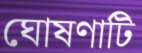
ঘোষণাটি